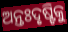
ଅନ୍ତଃଦୃଷ୍ଟିକୁ